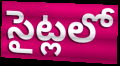
సైట్లలో